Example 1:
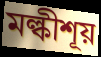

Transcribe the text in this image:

মল্কীশূয়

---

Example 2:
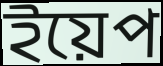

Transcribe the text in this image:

ইয়েপ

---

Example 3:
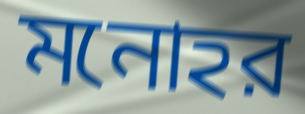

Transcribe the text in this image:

মনোহর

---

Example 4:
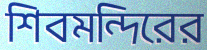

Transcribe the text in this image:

শিবমন্দিরের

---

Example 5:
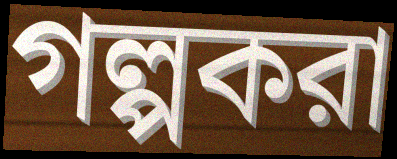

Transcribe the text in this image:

গল্পকরা